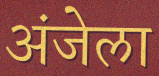
अंजेला